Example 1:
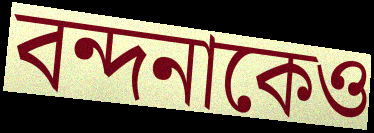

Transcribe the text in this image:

বন্দনাকেও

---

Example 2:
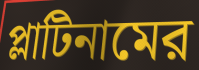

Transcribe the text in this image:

প্লাটিনামের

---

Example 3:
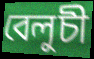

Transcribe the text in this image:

বেলুচী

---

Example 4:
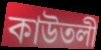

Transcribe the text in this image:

কাউতলী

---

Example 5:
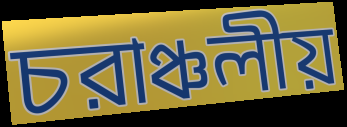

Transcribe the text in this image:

চরাঞ্চলীয়